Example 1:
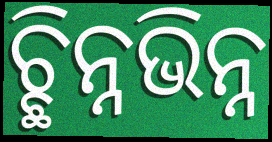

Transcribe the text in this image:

ଚ୍ଛିନ୍ନଭିନ୍ନ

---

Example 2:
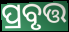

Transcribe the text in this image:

ପ୍ରବୃତ୍ତ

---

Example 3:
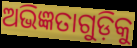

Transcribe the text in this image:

ଅଭିଜ୍ଞତାଗୁଡ଼ିକୁ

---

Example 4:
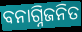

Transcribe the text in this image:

ବନାଗ୍ନିଜନିତ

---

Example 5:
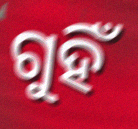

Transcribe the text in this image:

ଗୁହିଁ